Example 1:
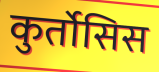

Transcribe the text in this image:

कुर्तोसिस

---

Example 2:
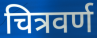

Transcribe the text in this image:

चित्रवर्ण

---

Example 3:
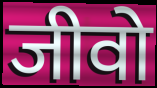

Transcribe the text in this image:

जीवो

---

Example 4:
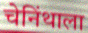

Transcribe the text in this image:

चेनिंथाला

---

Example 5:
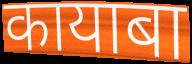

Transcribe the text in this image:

कायाबा